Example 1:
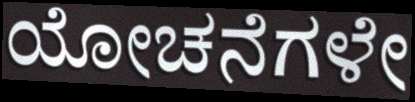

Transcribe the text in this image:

ಯೋಚನೆಗಳೇ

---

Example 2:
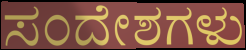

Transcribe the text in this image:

ಸಂದೇಶಗಳು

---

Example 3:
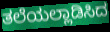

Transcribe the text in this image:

ತಲೆಯಲ್ಲಾಡಿಸಿದ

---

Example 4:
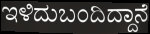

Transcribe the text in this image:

ಇಳಿದುಬಂದಿದ್ದಾನೆ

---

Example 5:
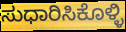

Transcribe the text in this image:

ಸುಧಾರಿಸಿಕೊಳ್ಳಿ